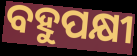
ବହୁପକ୍ଷୀ